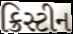
ક્રિસ્ટીન